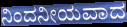
ನಿಂದನೀಯವಾದ